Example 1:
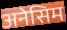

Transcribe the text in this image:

अनेसिम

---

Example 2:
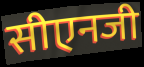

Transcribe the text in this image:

सीएनजी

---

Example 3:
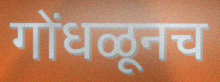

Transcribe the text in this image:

गोंधळूनच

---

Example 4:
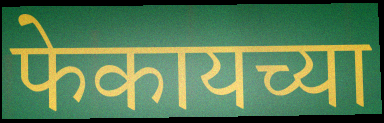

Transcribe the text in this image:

फेकायच्या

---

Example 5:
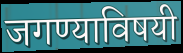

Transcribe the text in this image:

जगण्याविषयी